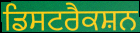
ਡਿਸਟਰੈਕਸ਼ਨ